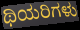
ಥಿಯರಿಗಳು